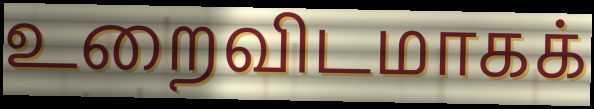
உறைவிடமாகக்